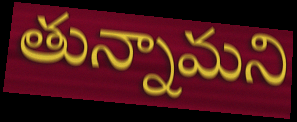
తున్నామని